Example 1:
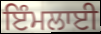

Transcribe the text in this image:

ਇੰਮਲਾਈ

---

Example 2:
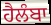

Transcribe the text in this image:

ਹੈਲੰਬਾ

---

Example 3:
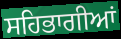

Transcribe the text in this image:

ਸਹਿਭਾਗੀਆਂ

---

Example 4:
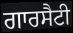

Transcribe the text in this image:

ਗਾਰਸੈਟੀ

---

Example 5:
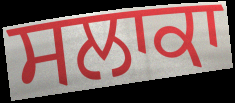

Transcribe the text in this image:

ਸਲਾਕਾ